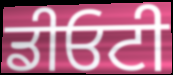
ਡੀਓਟੀ